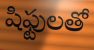
షిఫ్టులతో